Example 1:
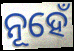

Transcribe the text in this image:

ନୂହେଁ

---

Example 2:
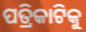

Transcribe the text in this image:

ପତ୍ରିକାଟିକୁ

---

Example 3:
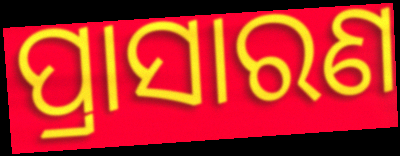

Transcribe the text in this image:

ପ୍ରାସାରଣ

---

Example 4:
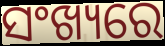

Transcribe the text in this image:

ସଂଖ୍ୟରେ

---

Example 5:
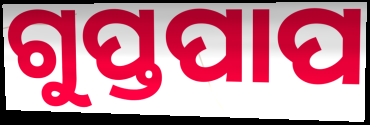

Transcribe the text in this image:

ଗୁପ୍ତପାପ